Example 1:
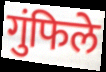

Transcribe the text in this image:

गुंफिले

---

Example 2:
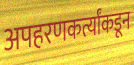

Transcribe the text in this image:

अपहरणकर्त्यांकडून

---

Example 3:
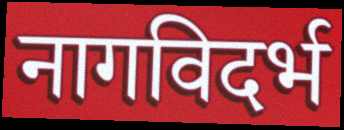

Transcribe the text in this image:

नागविदर्भ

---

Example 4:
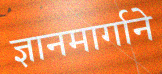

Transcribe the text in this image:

ज्ञानमार्गाने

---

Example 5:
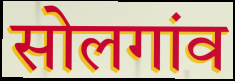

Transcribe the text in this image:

सोलगांव